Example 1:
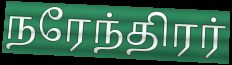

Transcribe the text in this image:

நரேந்திரர்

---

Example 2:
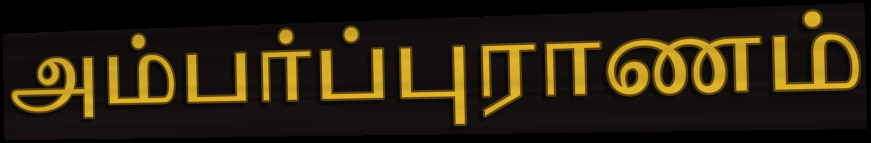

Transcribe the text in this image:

அம்பர்ப்புராணம்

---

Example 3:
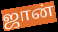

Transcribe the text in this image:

ஜான்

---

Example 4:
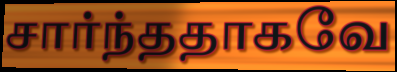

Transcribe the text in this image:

சார்ந்ததாகவே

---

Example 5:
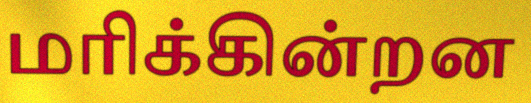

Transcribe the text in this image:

மரிக்கின்றன